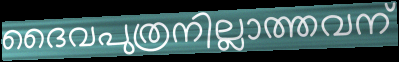
ദൈവപുത്രനില്ലാത്തവന്